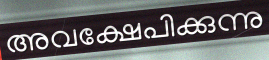
അവക്ഷേപിക്കുന്നു